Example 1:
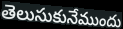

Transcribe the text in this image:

తెలుసుకునేముందు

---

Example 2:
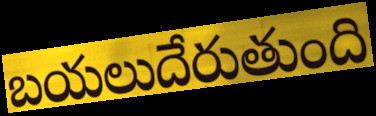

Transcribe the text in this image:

బయలుదేరుతుంది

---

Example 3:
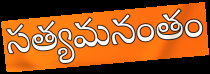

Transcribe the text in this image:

సత్యమనంతం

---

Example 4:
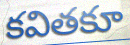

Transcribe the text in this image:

కవితకూ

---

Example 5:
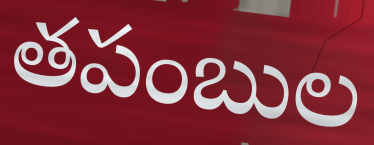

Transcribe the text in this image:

తపంబుల